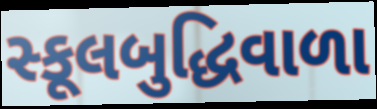
સ્કૂલબુદ્ધિવાળા